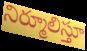
నిర్మూలిస్తూ